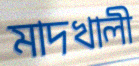
মাদখালী